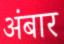
अंबार